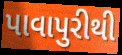
પાવાપુરીથી